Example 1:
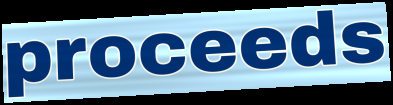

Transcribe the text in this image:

proceeds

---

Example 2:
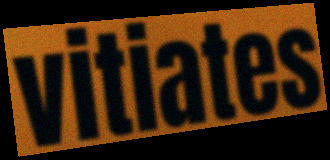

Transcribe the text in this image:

vitiates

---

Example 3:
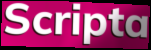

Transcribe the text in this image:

Scripta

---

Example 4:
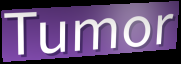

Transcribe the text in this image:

Tumor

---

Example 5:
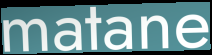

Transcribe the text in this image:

matane